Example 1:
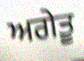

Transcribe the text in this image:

ਅਗੇਤੂ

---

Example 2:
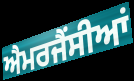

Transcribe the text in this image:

ਐਮਰਜੈਂਸੀਆਂ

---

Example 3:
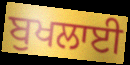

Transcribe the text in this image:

ਬੁਖਲਾਈ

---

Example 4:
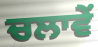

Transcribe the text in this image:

ਚਲਾਵੇਂ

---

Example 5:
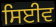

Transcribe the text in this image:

ਸਿਈਵ